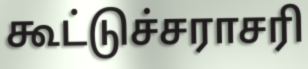
கூட்டுச்சராசரி